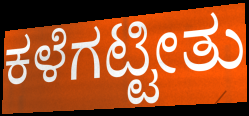
ಕಳೆಗಟ್ಟೀತು